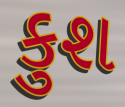
કુશ